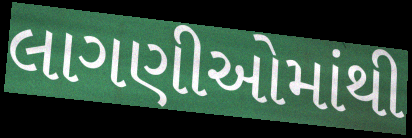
લાગણીઓમાંથી